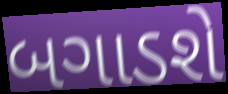
બગાડશે